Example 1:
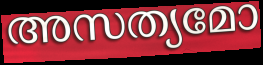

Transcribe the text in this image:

അസത്യമോ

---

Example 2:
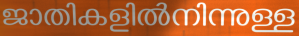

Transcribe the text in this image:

ജാതികളിൽനിന്നുള്ള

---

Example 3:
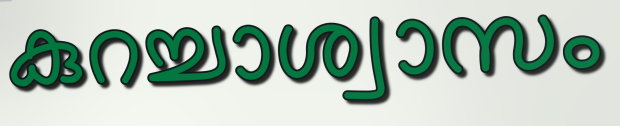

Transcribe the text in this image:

കുറച്ചാശ്വാസം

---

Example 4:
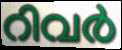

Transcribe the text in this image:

റിവർ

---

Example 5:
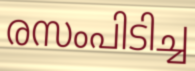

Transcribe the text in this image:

രസംപിടിച്ച